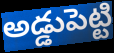
అడ్డుపెట్టి